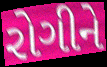
રોગીને